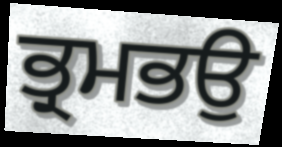
ਭ੍ਰਮਭਉ